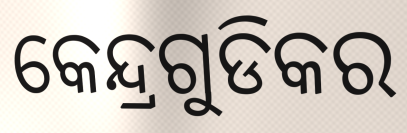
କେନ୍ଦ୍ରଗୁଡିକର